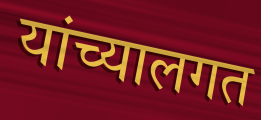
यांच्यालगत